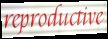
reproductive